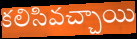
కలిసివచ్చాయి